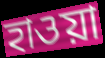
হাওয়া